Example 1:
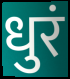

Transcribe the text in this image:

धुरं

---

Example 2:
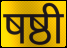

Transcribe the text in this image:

षष्ठी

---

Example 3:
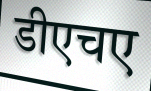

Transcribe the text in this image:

डीएचए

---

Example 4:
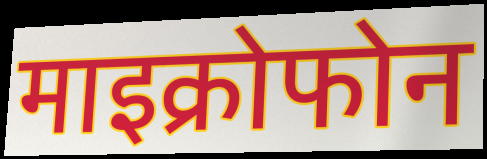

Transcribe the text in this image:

माइक्रोफोन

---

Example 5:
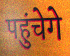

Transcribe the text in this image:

पहुंचेगे